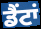
ਡੈਂਟਾਂ